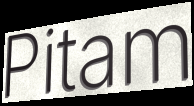
Pitam